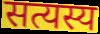
सत्यस्य